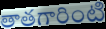
తాతగారింటి